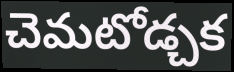
చెమటోడ్చక